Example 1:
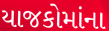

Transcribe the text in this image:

યાજકોમાંના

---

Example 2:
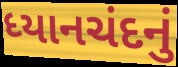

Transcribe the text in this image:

ધ્યાનચંદનું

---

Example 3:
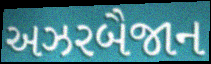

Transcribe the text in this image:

અઝરબૈજાન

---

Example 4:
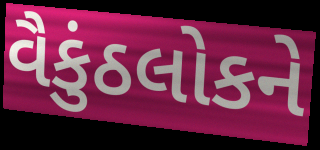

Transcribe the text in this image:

વૈકુંઠલોકને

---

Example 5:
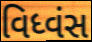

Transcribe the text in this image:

વિધ્વંસ